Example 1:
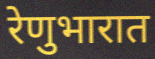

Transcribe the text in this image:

रेणुभारात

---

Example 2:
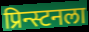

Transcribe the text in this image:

प्रिन्स्टनला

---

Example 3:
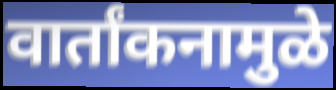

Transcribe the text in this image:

वार्तांकनामुळे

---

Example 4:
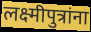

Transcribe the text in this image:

लक्ष्मीपुत्रांना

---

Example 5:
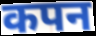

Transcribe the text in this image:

कपन